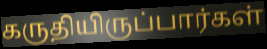
கருதியிருப்பார்கள்